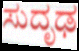
ಸುದೃಢ